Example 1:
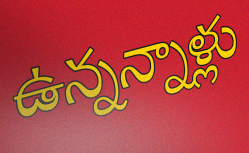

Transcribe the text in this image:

ఉన్నన్నాళ్లు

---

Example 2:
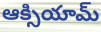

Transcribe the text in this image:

ఆక్సియామ్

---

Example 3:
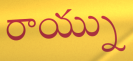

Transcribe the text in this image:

రాయ్ను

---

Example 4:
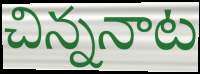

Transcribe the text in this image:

చిన్ననాట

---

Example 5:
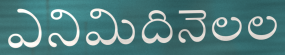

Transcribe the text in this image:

ఎనిమిదినెలల